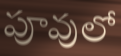
పూవులో